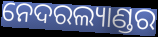
ନେଦରଲ୍ୟାଣ୍ଡର